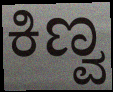
ಕಿಣ್ವ